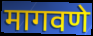
मागवणे